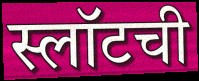
स्लॉटची